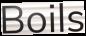
Boils